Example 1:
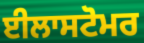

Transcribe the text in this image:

ਈਲਾਸਟੋਮਰ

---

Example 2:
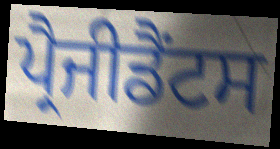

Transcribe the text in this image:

ਪ੍ਰੈਜੀਡੈਂਟਸ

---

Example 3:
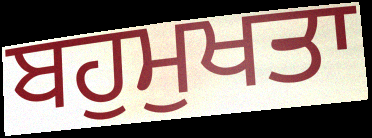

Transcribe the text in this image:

ਬਹੁਮੁਖਤਾ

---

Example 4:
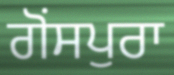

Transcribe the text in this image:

ਗੋਂਸਪੁਰਾ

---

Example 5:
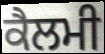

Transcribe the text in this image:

ਕੈਲਮੀ